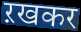
ऱखकर